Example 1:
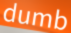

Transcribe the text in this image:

dumb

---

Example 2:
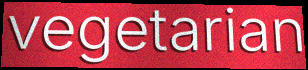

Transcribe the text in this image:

vegetarian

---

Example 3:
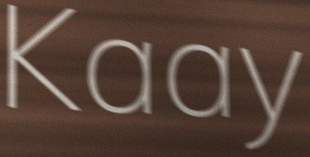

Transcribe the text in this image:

Kaay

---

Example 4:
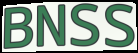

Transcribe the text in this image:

BNSS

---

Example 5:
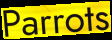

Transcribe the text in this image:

Parrots